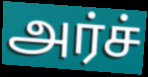
அர்ச்